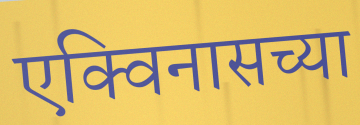
एक्विनासच्या